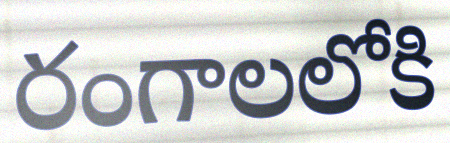
రంగాలలోకి